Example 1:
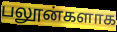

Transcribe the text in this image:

பலூன்களாக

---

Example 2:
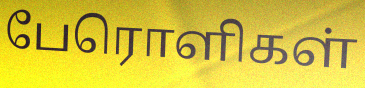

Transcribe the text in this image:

பேரொளிகள்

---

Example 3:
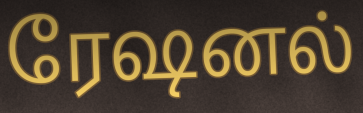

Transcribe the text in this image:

ரேஷனல்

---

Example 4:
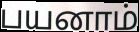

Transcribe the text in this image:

பயனாம்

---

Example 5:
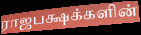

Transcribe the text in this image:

ராஜபக்ஷக்களின்